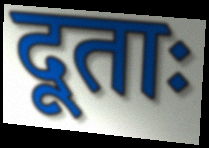
दूताः